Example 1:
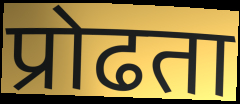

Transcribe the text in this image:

प्रोढता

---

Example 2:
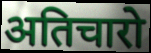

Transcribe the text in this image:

अतिचारो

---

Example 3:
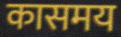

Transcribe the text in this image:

कासमय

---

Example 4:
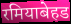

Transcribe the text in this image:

रमियाबेहड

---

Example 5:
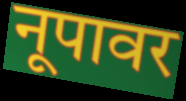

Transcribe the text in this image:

नूपावर